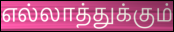
எல்லாத்துக்கும்